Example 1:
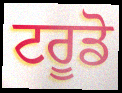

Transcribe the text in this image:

ਟਰੂਡੋ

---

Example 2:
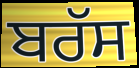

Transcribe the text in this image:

ਬਰੱਸ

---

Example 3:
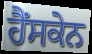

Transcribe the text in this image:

ਹੈਂਸਕੇਨ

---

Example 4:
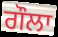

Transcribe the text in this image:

ਗੌਲਾ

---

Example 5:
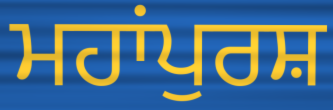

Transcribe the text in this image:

ਮਹਾਂਪੁਰਸ਼